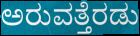
ಅರುವತ್ತೆರಡು